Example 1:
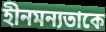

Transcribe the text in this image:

হীনমন্যতাকে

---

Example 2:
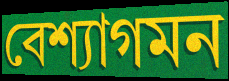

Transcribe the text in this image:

বেশ্যাগমন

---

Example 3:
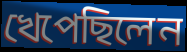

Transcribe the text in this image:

খেপেছিলেন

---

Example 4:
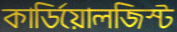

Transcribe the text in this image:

কার্ডিয়োলজিস্ট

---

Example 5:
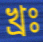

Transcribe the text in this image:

খ্রঃ